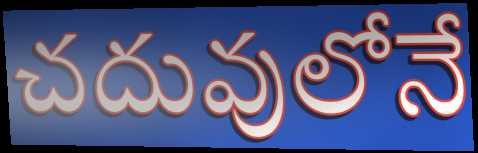
చదువులోనే